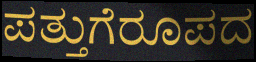
ಪತ್ತುಗೆರೂಪದ